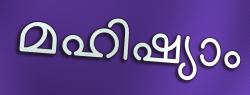
മഹിഷ്യാം